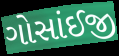
ગોસાંઈજી